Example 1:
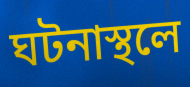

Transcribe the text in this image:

ঘটনাস্থলে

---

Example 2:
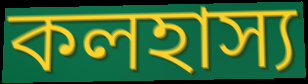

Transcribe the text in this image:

কলহাস্য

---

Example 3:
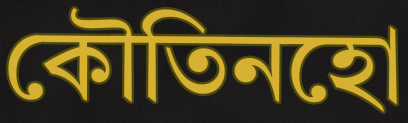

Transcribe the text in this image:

কৌতিনহো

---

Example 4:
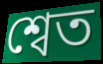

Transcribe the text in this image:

শ্বেত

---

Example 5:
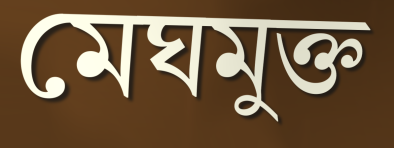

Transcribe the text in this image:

মেঘমুক্ত